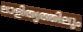
ലാളിത്യത്തിലും